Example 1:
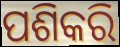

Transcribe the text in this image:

ପଶିକରି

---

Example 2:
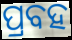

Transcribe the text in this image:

ପ୍ରବହ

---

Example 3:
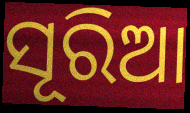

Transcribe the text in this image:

ସୂରିଆ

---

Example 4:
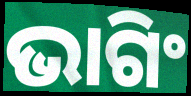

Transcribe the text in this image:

ଭାଗିଂ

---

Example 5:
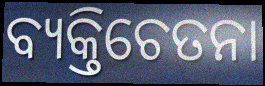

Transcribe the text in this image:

ବ୍ୟକ୍ତିଚେତନା